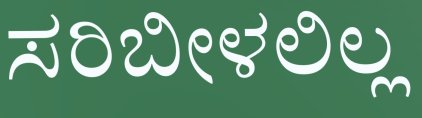
ಸರಿಬೀಳಲಿಲ್ಲ